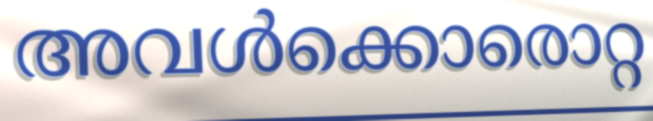
അവൾക്കൊരൊറ്റ